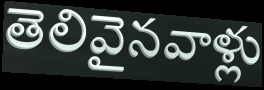
తెలివైనవాళ్లు